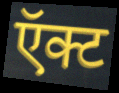
ऍक्ट